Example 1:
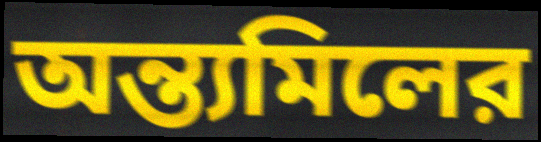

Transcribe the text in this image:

অন্ত্যমিলের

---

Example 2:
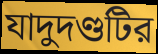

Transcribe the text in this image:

যাদুদণ্ডটির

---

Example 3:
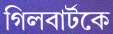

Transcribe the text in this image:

গিলবার্টকে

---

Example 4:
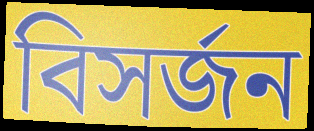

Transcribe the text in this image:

বিসর্জন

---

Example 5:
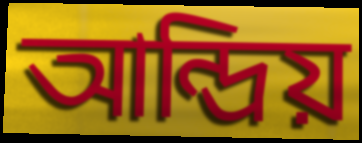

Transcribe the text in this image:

আন্দ্রিয়